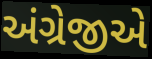
અંગ્રેજીએ